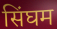
सिंघम